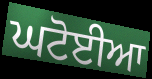
ਘਟੋਈਆ